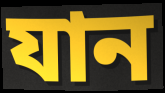
যান